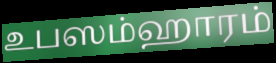
உபஸம்ஹாரம்